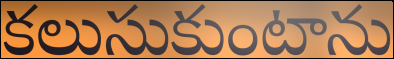
కలుసుకుంటాను